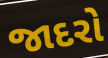
જાદરો